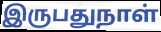
இருபதுநாள்